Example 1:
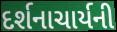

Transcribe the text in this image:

દર્શનાચાર્યની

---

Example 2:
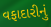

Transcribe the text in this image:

વફાદારીનું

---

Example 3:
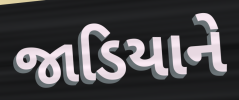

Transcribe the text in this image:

જાડિયાને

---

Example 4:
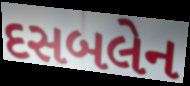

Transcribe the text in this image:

દસબલેન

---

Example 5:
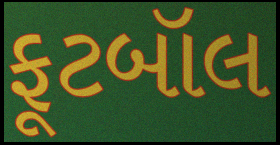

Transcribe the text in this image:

ફૂટબૉલ